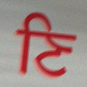
ਣਿ